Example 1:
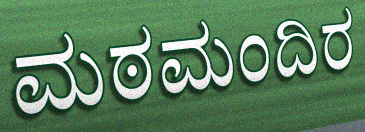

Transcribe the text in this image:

ಮಠಮಂದಿರ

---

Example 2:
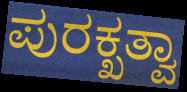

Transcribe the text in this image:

ಪುರಕ್ಖತ್ವಾ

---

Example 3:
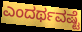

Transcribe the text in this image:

ಎಂದರ್ಥವಷ್ಟೆ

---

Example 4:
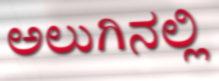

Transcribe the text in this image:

ಅಲುಗಿನಲ್ಲಿ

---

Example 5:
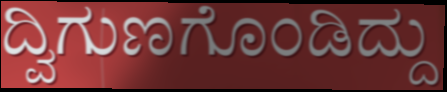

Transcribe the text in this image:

ದ್ವಿಗುಣಗೊಂಡಿದ್ದು